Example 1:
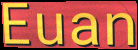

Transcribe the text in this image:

Euan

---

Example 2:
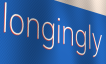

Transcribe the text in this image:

longingly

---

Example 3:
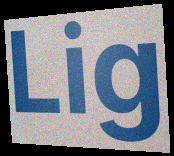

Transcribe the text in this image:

Lig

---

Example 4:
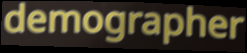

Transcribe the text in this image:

demographer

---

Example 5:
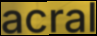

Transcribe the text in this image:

acral